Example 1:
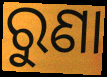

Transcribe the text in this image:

ରୁଣା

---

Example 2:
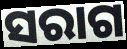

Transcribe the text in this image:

ସରାଗ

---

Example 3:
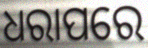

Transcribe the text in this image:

ଧରାପରେ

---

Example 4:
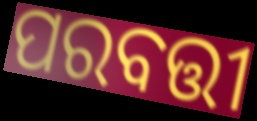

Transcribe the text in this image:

ପରବତ୍ତୀ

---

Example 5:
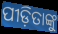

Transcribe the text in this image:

ପୀଡ଼ିତାଙ୍କୁ